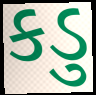
કડુ